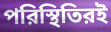
পরিস্থিতিরই